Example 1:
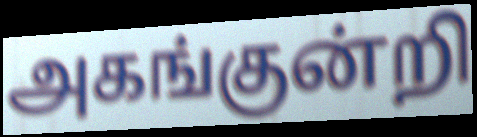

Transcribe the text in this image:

அகங்குன்றி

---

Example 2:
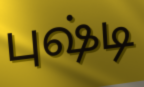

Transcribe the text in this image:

புஷ்டி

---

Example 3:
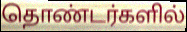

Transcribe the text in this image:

தொண்டர்களில்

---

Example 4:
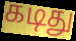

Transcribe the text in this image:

கடிது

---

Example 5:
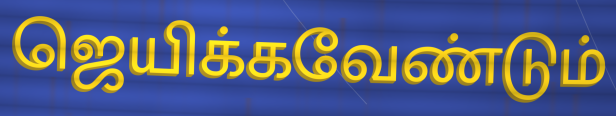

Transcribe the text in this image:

ஜெயிக்கவேண்டும்